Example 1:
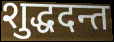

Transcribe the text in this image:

शुद्धदन्त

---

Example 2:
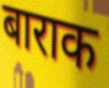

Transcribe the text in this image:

बाराक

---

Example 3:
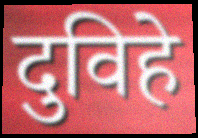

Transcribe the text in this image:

दुविहे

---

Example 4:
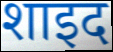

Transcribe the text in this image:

शाइद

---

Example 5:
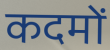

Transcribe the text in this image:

कदमों